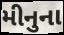
મીનુના